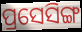
ପ୍ରସେସିଙ୍ଗ